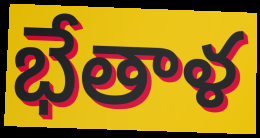
భేతాళ